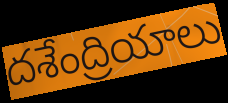
దశేంద్రియాలు